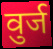
वुर्ज